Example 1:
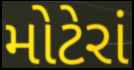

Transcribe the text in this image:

મોટેરાં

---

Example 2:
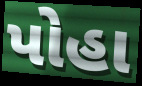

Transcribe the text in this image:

પોહા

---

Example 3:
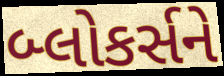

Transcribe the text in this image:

બ્લોકર્સને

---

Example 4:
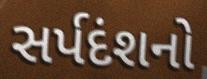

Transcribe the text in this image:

સર્પદંશનો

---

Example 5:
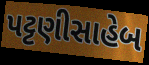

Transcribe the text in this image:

પટ્ટણીસાહેબ